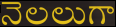
నెలలుగా